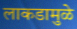
लाकडामुळे